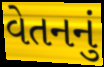
વેતનનું